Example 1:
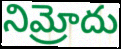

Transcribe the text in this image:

నిమ్రోదు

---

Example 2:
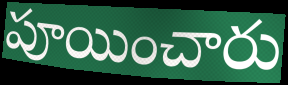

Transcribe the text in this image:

పూయించారు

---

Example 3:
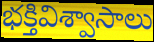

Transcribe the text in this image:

భక్తివిశ్వాసాలు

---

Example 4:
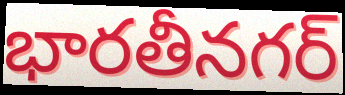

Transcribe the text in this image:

భారతీనగర్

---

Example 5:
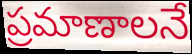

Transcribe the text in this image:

ప్రమాణాలనే